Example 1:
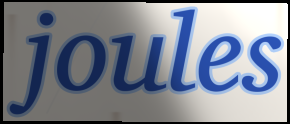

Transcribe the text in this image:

joules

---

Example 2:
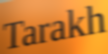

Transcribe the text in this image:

Tarakh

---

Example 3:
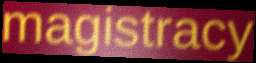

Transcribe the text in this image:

magistracy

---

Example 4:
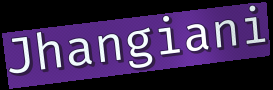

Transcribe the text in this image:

Jhangiani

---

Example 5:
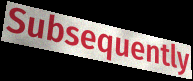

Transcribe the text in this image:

Subsequently